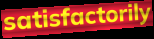
satisfactorily